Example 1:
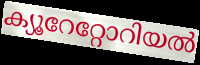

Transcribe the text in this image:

ക്യൂറേറ്റോറിയൽ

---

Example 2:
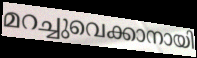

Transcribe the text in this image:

മറച്ചുവെക്കാനായി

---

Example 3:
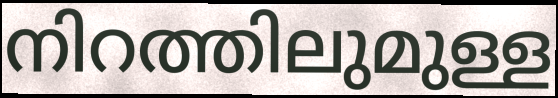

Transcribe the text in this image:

നിറത്തിലുമുള്ള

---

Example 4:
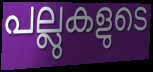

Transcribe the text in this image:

പല്ലുകളുടെ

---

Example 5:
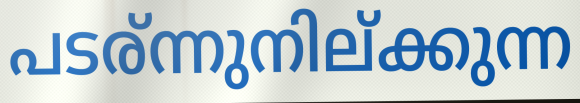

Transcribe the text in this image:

പടര്ന്നുനില്ക്കുന്ന